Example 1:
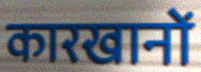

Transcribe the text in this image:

कारखानों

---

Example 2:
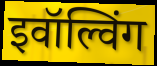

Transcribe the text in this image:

इवॉल्विंग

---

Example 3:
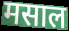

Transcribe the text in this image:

मसाल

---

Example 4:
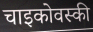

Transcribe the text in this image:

चाइकोवस्की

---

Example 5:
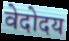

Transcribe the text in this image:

वेदोदय